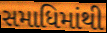
સમાધિમાંથી